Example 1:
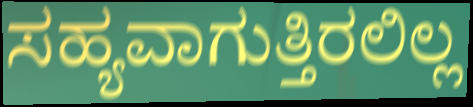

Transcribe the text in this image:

ಸಹ್ಯವಾಗುತ್ತಿರಲಿಲ್ಲ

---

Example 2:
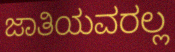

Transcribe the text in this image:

ಜಾತಿಯವರಲ್ಲ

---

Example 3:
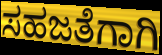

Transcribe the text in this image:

ಸಹಜತೆಗಾಗಿ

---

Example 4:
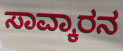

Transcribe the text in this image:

ಸಾವ್ಕಾರನ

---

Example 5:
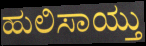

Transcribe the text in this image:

ಹುಲಿಸಾಯ್ತು